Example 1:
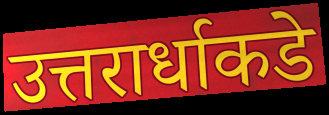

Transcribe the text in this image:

उत्तरार्धाकडे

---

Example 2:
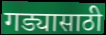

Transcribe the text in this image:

गड्यासाठी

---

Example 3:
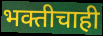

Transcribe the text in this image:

भक्तीचाही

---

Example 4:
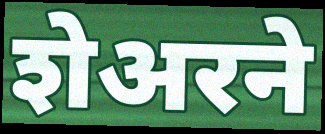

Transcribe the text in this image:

शेअरने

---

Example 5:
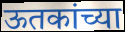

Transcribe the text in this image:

ऊतकांच्या